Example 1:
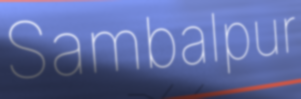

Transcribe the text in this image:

Sambalpur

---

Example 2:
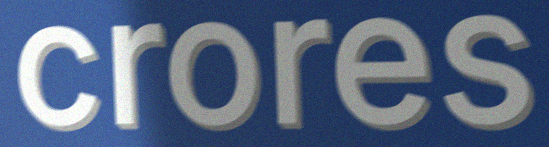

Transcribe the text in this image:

crores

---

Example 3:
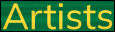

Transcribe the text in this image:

Artists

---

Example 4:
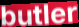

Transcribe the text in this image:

butler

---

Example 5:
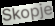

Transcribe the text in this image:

Skopje